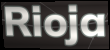
Rioja